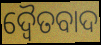
ଦ୍ୱୈତବାଦ